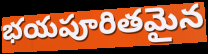
భయపూరితమైన